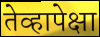
तेव्हापेक्षा